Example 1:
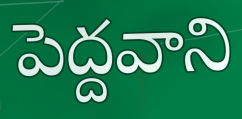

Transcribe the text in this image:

పెద్దవాని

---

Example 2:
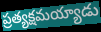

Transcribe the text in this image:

ప్రత్యక్షమయ్యాడు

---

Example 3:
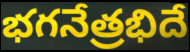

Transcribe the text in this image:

భగనేత్రభిదే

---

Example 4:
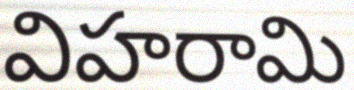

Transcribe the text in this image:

విహరామి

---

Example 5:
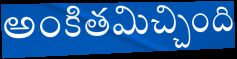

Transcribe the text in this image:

అంకితమిచ్చింది